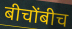
बीचोंबीच